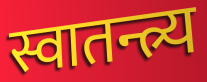
स्वातन्त्र्य